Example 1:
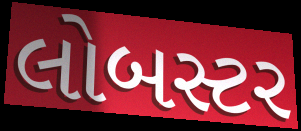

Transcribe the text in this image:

લોબસ્ટર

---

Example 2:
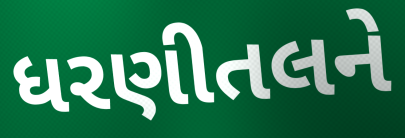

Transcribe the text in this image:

ધરણીતલને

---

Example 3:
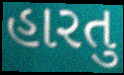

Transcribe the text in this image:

હારતુ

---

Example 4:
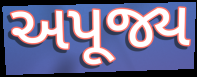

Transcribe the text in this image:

અપૂજ્ય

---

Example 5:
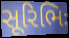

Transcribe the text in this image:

સૂરિભિઃ